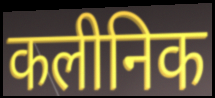
कलीनिक